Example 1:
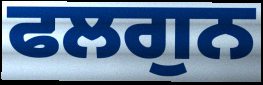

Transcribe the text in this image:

ਫਲਗੁਨ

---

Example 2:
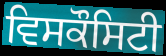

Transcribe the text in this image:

ਵਿਸਕੌਸਿਟੀ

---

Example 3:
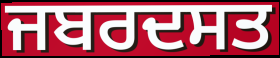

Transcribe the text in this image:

ਜਬਰਦਸਤ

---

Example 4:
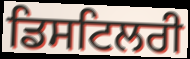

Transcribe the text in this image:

ਡਿਸਟਿਲਰੀ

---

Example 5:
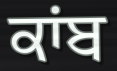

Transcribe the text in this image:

ਕਾਂਬ